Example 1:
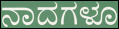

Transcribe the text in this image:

ನಾದಗಳೂ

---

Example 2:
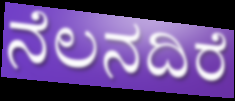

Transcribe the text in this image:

ನೆಲನದಿರೆ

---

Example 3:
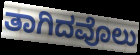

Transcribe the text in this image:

ತಾಗಿದವೊಲು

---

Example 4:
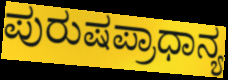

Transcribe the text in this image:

ಪುರುಷಪ್ರಾಧಾನ್ಯ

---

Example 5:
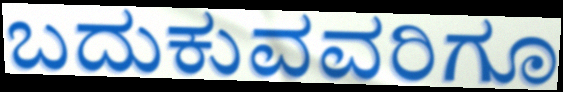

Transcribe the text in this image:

ಬದುಕುವವರಿಗೂ